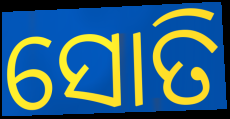
ସୋତି